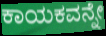
ಕಾಯಕವನ್ನೇ